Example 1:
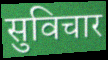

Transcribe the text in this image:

सुविचार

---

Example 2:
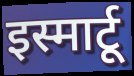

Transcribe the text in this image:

इस्मार्टू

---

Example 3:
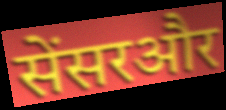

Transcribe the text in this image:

सेंसरऔर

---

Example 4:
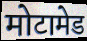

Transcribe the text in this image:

मोटामेड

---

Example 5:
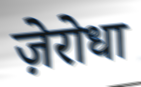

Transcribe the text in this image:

ज़ेरोधा